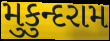
મુકુન્દરામ